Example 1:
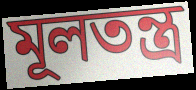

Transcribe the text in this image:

মূলতন্ত্র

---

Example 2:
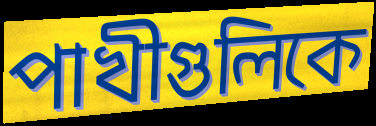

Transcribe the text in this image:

পাখীগুলিকে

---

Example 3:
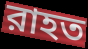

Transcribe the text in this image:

রাহত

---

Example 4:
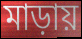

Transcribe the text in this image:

মাড়ায়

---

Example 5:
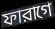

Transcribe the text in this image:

ফারাগে